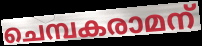
ചെമ്പകരാമന്